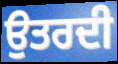
ਉਤਰਦੀ